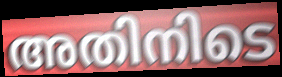
അതിനിടെ